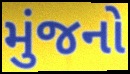
મુંજનો